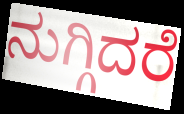
ನುಗ್ಗಿದರೆ